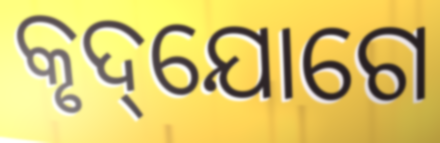
କୃଦ୍‌ଯୋଗେ